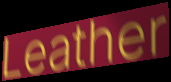
Leather